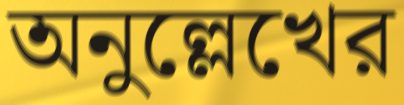
অনুল্লেখের